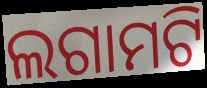
ଲଗାମଟି